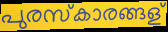
പുരസ്കാരങ്ങള്